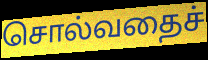
சொல்வதைச்